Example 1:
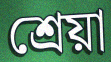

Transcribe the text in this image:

শ্ৰেয়া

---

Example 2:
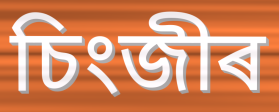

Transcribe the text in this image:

চিংজীৰ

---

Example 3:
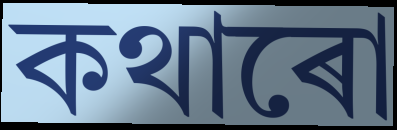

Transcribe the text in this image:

কথাৰো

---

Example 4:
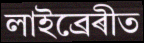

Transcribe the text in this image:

লাইব্ৰেৰীত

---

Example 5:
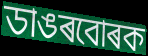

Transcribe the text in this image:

ডাঙৰবোৰক